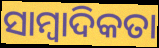
ସାମ୍ୱାଦିକତା